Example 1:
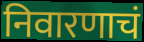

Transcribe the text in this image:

निवारणाचं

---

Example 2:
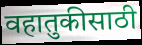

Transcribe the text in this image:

वहातुकीसाठी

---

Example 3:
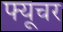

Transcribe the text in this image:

फ्यूचर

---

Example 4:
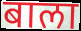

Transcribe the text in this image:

बाला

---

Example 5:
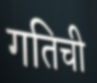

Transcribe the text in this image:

गतिची